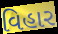
વિહાર